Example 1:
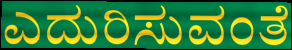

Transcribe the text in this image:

ಎದುರಿಸುವಂತೆ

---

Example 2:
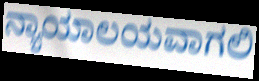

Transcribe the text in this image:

ನ್ಯಾಯಾಲಯವಾಗಲಿ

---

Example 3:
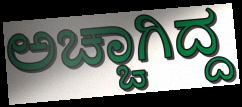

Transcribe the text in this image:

ಅಚ್ಚಾಗಿದ್ದ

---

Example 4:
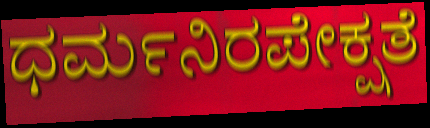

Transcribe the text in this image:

ಧರ್ಮನಿರಪೇಕ್ಷತೆ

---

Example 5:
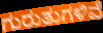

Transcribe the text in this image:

ಗುರುತುಗಳಿವೆ